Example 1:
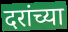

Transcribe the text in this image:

दरांच्या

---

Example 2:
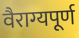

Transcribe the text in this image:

वैराग्यपूर्ण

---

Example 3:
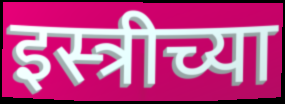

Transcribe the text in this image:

इस्त्रीच्या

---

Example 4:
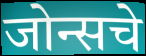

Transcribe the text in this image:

जोन्सचे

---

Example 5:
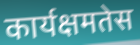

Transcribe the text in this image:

कार्यक्षमतेस